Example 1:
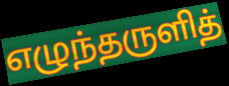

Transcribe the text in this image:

எழுந்தருளித்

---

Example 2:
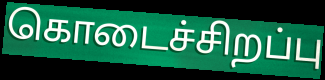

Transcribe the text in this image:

கொடைச்சிறப்பு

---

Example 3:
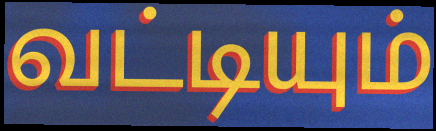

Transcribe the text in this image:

வட்டியும்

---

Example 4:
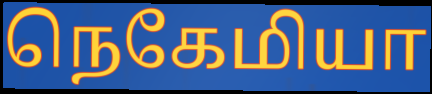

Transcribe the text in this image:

நெகேமியா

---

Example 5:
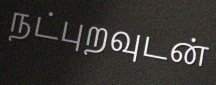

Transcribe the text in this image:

நட்புறவுடன்